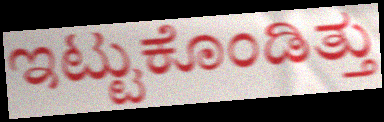
ಇಟ್ಟುಕೊಂಡಿತ್ತು